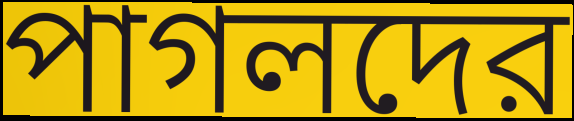
পাগলদের